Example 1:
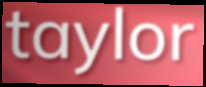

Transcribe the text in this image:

taylor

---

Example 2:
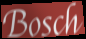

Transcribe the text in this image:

Bosch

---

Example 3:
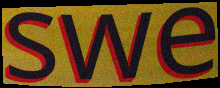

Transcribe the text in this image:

swe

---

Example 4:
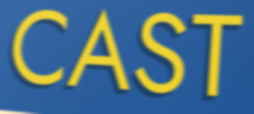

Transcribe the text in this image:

CAST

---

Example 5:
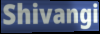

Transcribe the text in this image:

Shivangi